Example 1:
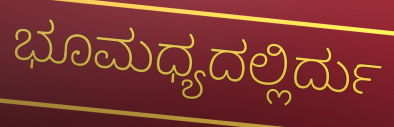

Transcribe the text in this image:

ಭೂಮಧ್ಯದಲ್ಲಿರ್ದು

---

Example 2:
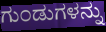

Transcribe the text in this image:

ಗುಂಡುಗಳನ್ನು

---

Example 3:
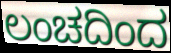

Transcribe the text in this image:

ಲಂಚದಿಂದ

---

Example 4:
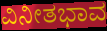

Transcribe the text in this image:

ವಿನೀತಭಾವ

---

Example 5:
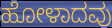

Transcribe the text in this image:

ಹೋಳಾದವು